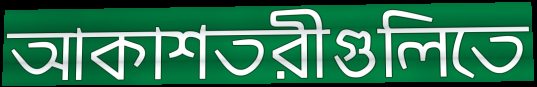
আকাশতরীগুলিতে